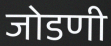
जोडणी